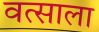
वत्साला